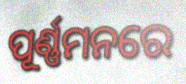
ପୂର୍ଣ୍ଣମନରେ